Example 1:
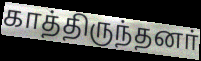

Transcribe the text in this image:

காத்திருந்தனர்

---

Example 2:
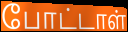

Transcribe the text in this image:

போட்டாள்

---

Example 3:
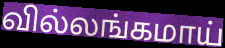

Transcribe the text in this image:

வில்லங்கமாய்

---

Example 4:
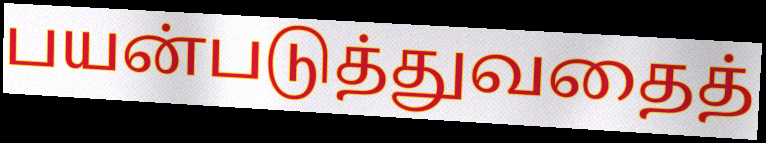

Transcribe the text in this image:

பயன்படுத்துவதைத்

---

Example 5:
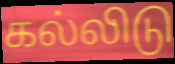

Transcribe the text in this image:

கல்லிடு